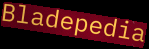
Bladepedia